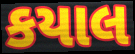
કયાલ